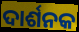
ଦାର୍ଶନକ